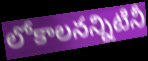
లోకాలనన్నిటినీ